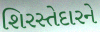
શિરસ્તેદારને